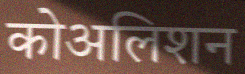
कोअलिशन